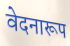
वेदनारूप